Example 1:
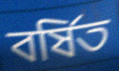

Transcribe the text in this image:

বর্ষিত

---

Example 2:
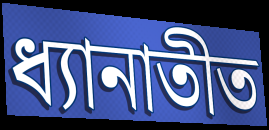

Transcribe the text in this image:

ধ্যানাতীত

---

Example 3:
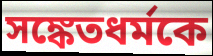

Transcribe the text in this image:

সঙ্কেতধর্মকে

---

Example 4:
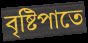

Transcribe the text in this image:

বৃষ্টিপাতে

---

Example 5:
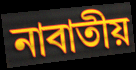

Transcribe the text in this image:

নাবাতীয়